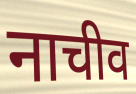
नाचीव